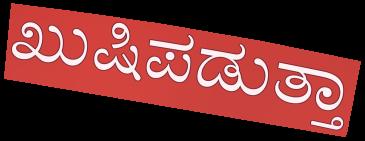
ಖುಷಿಪಡುತ್ತಾ